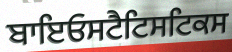
ਬਾਇਓਸਟੈਟਿਸਟਿਕਸ